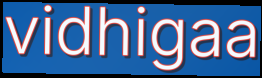
vidhigaa